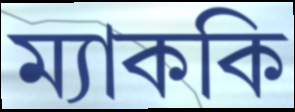
ম্যাককি